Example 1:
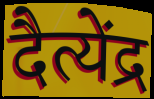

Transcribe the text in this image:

दैत्येंद्र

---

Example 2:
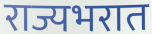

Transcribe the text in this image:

राज्यभरात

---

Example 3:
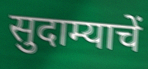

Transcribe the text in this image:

सुदाम्याचें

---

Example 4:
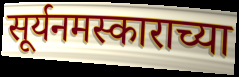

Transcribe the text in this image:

सूर्यनमस्काराच्या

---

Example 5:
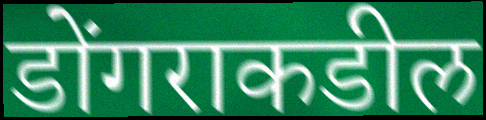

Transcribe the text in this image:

डोंगराकडील